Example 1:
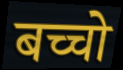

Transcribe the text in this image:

बच्चो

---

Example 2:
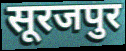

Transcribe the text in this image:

सूरजपुर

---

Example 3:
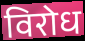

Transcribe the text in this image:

विरोध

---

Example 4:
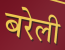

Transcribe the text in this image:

बरेली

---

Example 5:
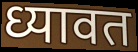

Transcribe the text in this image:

ध्यावत